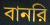
বানরি